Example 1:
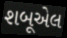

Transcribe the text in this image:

શબૂએલ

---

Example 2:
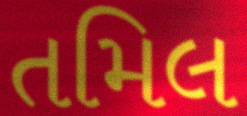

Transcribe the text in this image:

તમિલ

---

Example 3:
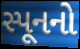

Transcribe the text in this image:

સ્પૂનનો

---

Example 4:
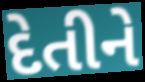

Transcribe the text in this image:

દેતીને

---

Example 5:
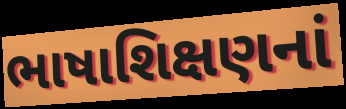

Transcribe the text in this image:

ભાષાશિક્ષણનાં